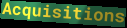
Acquisitions